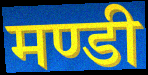
मण्डी